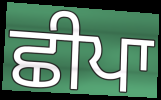
ਛੀਪਾ